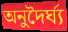
অনুদৈর্ঘ্য